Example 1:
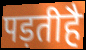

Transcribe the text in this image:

पड़तीहै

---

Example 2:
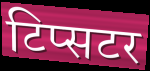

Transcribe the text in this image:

टिप्सटर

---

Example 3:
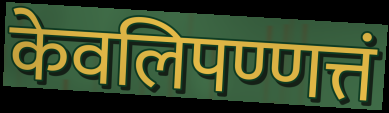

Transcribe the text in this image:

केवलिपण्णत्तं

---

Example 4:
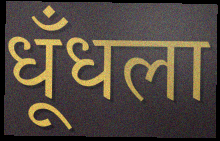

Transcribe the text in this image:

धूँधला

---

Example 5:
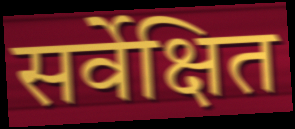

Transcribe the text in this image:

सर्वेक्षित